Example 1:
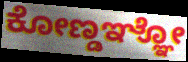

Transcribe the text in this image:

ಕೋಣ್ಡಞ್ಞೋ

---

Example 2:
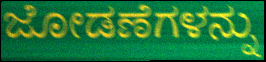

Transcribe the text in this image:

ಜೋಡಣೆಗಳನ್ನು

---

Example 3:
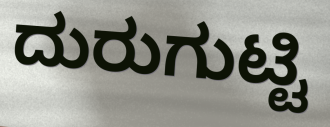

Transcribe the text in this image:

ದುರುಗುಟ್ಟಿ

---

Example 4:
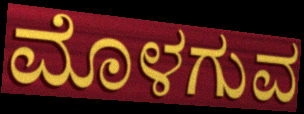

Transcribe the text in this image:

ಮೊಳಗುವ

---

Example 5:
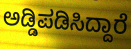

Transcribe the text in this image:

ಅಡ್ಡಿಪಡಿಸಿದ್ದಾರೆ